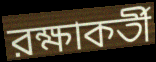
রক্ষাকর্তী